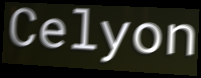
Celyon